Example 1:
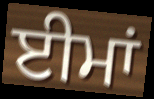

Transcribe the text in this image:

ਈਮਾਂ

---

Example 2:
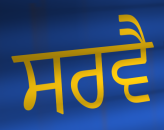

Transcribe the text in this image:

ਸਰਵੈ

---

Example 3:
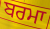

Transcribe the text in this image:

ਬਰਮਾ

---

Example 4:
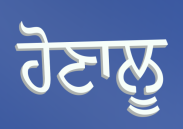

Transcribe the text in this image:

ਹੋਣਾਲੂ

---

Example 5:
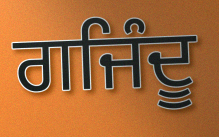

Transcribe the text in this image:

ਗਜਿੰਦੂ